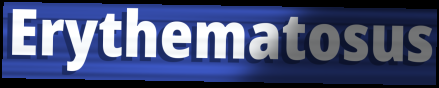
Erythematosus